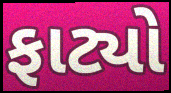
ફાટ્યો